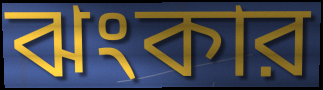
ঝংকার